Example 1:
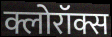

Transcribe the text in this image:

क्लोरॉक्स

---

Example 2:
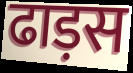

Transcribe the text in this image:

ढाड़स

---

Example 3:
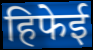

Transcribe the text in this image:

हिफेई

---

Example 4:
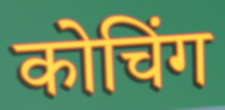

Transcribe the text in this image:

कोचिंग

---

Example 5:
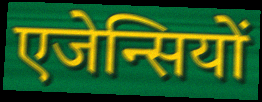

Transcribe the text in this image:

एजेन्सियों